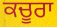
ਕਚੂਰਾ